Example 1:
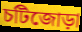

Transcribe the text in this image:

চটিজোড়া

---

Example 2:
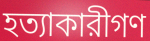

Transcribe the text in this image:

হত্যাকারীগণ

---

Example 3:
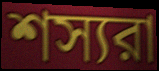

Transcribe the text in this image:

শস্যরা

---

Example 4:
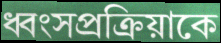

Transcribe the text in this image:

ধ্বংসপ্রক্রিয়াকে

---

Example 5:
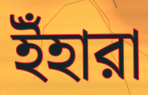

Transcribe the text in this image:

ইঁহারা